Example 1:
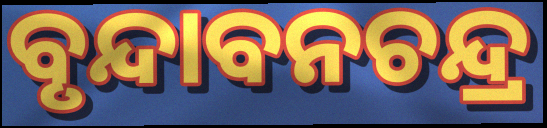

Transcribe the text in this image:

ବୃନ୍ଦାବନଚନ୍ଦ୍ର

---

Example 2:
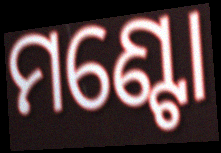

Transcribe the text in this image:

ମଣ୍ଟୋ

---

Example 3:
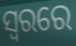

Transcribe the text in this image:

ସ୍ୱରରେ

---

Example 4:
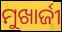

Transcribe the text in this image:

ମୁଖାର୍ଜୀ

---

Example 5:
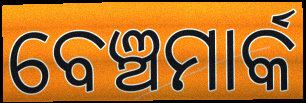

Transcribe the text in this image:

ବେଞ୍ଚମାର୍କ